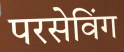
परसेविंग